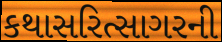
કથાસરિત્સાગરની